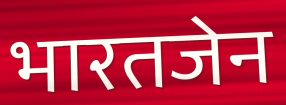
भारतजेन